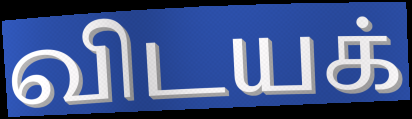
விடயக்